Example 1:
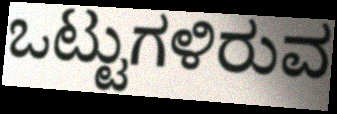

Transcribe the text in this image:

ಒಟ್ಟುಗಳಿರುವ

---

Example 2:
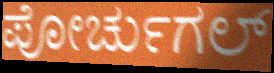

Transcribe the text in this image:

ಪೋರ್ಚುಗಲ್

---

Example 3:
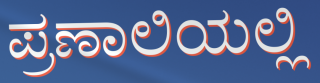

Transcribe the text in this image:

ಪ್ರಣಾಲಿಯಲ್ಲಿ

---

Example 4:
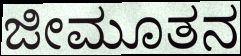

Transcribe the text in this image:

ಜೀಮೂತನ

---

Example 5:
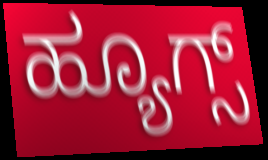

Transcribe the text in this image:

ಹ್ಯೂಗ್ಸ್